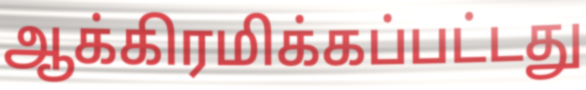
ஆக்கிரமிக்கப்பட்டது